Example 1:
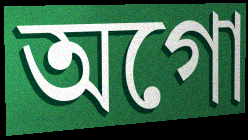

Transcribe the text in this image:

অগো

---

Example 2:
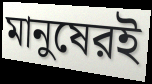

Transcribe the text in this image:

মানুষেরই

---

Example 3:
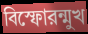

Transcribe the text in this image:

বিস্ফোরন্মুখ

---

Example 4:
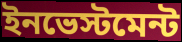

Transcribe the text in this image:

ইনভেস্টমেন্ট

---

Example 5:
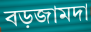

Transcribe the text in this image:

বড়জামদা